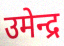
उमेन्द्र